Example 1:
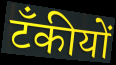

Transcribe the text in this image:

टँकीयों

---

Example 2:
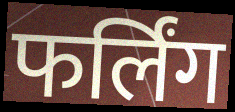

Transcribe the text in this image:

फर्लिंग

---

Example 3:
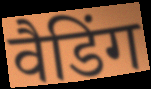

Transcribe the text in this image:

वैडिंग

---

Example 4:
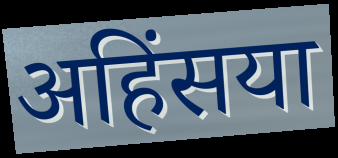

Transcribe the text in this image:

अहिंसया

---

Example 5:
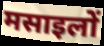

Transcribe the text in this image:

मसाइलों